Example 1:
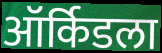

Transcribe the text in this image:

ऑर्किडला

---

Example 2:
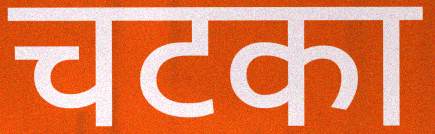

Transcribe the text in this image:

चटका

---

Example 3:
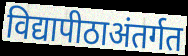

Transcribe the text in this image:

विद्यापीठाअंतर्गत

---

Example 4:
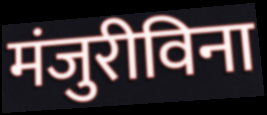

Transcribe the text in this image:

मंजुरीविना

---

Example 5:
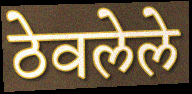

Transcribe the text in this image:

ठेवलेले